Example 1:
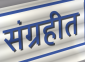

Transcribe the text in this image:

संग्रहीत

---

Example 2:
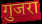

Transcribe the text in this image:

गुजरा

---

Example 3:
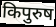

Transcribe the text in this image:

किपुरुष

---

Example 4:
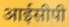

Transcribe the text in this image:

आईसीपी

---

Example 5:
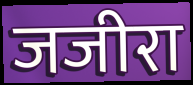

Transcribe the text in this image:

जजीरा